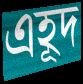
এহূদ